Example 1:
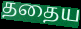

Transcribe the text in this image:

ததைய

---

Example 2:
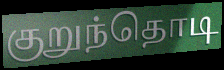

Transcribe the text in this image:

குறுந்தொடி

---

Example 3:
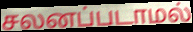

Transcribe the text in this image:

சலனப்படாமல்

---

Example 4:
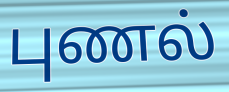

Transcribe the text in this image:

புணல்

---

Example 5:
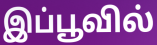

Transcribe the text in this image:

இப்பூவில்